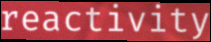
reactivity